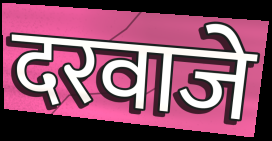
दरवाजे